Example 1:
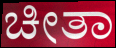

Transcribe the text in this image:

ಚೀತಾ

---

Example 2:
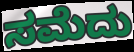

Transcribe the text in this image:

ಸಮೆದು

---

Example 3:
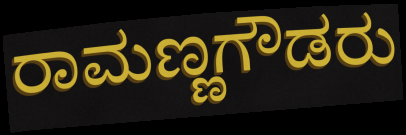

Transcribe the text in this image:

ರಾಮಣ್ಣಗೌಡರು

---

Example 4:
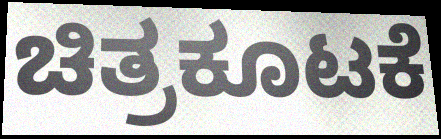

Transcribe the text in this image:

ಚಿತ್ರಕೂಟಕೆ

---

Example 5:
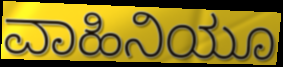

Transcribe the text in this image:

ವಾಹಿನಿಯೂ